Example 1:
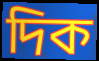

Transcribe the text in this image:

দিক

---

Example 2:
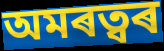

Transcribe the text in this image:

অমৰত্বৰ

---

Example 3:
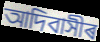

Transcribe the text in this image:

আদিবাসীৰ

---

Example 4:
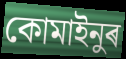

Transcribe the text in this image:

কোমাইনুৰ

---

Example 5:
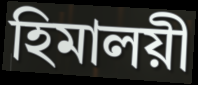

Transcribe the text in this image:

হিমালয়ী